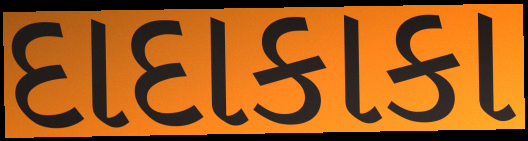
દાદાકાકા